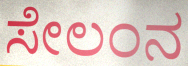
ಸೇಲಂನ